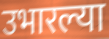
उभारल्या